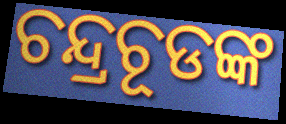
ଚନ୍ଦ୍ରଚୂଡଙ୍କ